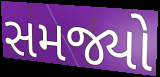
સમજ્યો